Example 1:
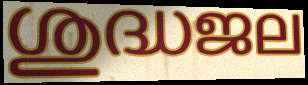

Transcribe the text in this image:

ശുദ്ധജല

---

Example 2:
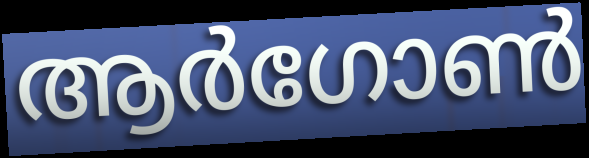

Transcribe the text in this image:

ആർഗോൺ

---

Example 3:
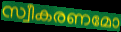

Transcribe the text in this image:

സ്വീകരണമോ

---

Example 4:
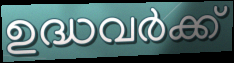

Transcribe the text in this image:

ഉദ്ധവർക്ക്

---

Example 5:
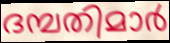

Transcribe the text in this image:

ദമ്പതിമാർ